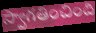
స్వాగతించింది